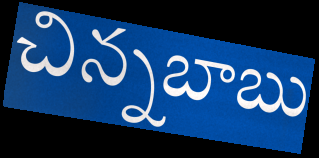
చిన్నబాబు